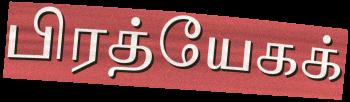
பிரத்யேகக்